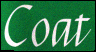
Coat